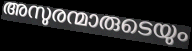
അസുരന്മാരുടെയും